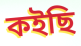
কইছি